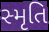
સ્મૃતિ